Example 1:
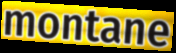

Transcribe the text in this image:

montane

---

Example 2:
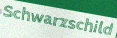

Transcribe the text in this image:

Schwarzschild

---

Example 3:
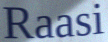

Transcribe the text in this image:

Raasi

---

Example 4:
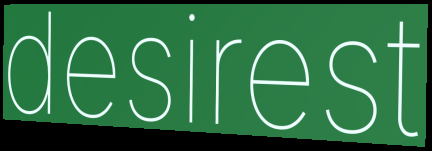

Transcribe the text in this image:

desirest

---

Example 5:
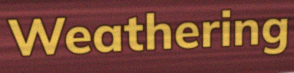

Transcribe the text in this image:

Weathering